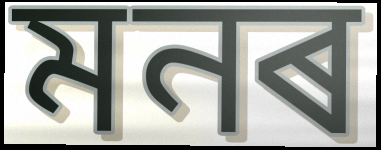
মনৰ